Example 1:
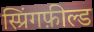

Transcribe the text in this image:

स्प्रिंगफ़ील्ड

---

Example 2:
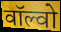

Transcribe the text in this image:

वॉल्वो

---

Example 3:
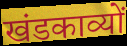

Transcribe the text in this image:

खंडकाव्यों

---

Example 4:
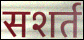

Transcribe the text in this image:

सशर्त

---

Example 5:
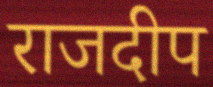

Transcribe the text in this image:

राजदीप